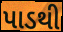
પાડથી